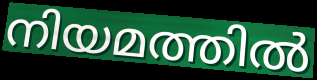
നിയമത്തിൽ